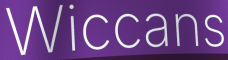
Wiccans